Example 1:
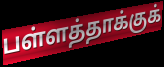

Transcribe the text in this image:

பள்ளத்தாக்குக்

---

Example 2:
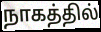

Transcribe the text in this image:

நாகத்தில்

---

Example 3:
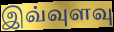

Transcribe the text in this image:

இவ்வுளவு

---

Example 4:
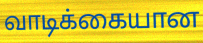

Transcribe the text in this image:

வாடிக்கையான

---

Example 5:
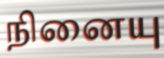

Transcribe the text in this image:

நினையு